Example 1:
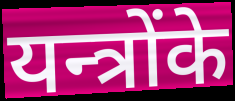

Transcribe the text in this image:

यन्त्रोंके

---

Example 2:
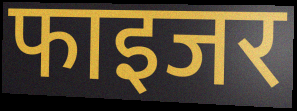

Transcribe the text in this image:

फाइजर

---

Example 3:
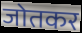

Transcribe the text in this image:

जोतकर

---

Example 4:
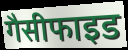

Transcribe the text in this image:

गैसीफाइड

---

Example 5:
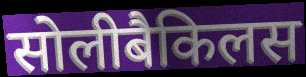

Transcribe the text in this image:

सोलीबैकिलस